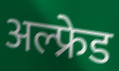
अल्फ्रेड